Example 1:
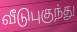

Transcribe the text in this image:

வீடுபுகுந்து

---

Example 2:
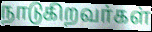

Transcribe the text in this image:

நாடுகிறவர்கள்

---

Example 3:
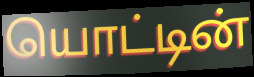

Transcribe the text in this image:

யொட்டின்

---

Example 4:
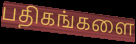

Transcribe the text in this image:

பதிகங்களை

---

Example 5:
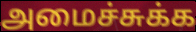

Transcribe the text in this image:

அமைச்சுக்க